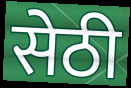
सेठी